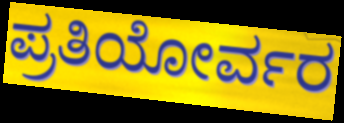
ಪ್ರತಿಯೋರ್ವರ